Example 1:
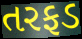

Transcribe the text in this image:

તરફડ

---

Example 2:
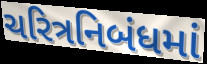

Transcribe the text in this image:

ચરિત્રનિબંધમાં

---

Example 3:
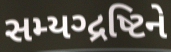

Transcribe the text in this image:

સમ્યગ્દ્રષ્ટિને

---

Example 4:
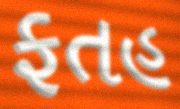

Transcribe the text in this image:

ફતહ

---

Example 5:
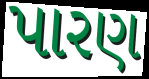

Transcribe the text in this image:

પારણ